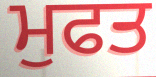
ਮੁਫਤ